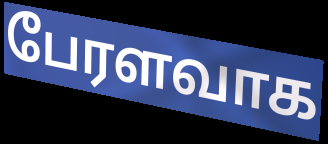
பேரளவாக